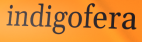
indigofera